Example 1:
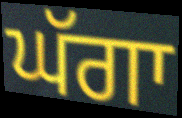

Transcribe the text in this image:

ਘੱਗਾ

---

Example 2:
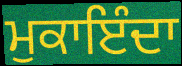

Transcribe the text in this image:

ਮੁਕਾਇੰਦਾ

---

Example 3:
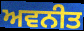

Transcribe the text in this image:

ਅਵਨੀਤ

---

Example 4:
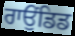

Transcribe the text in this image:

ਰਾਉਂਡਿਡ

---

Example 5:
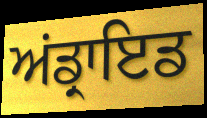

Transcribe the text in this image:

ਅਂਡ੍ਰਾਇਡ